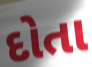
દોતા